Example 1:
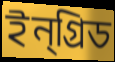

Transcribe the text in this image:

ইন্‌গ্রিড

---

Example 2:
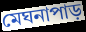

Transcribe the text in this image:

মেঘনাপাড়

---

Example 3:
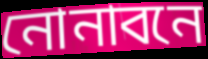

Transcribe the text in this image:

নোনাবনে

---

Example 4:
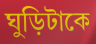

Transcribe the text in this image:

ঘুড়িটাকে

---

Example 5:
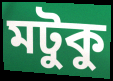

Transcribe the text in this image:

মটুকু